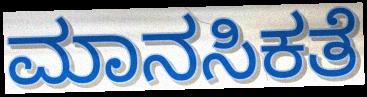
ಮಾನಸಿಕತೆ